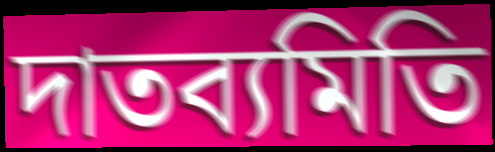
দাতব্যমিতি